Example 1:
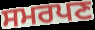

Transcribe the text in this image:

ਸਮਰਪਣ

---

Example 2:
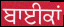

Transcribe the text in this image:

ਬਾਈਕਾਂ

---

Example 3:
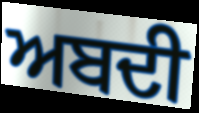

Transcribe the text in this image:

ਅਬਦੀ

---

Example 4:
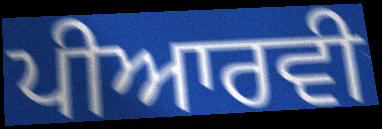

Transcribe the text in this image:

ਪੀਆਰਵੀ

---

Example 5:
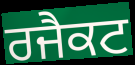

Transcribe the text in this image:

ਰਜੈਕਟ